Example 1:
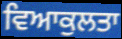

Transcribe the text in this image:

ਵਿਆਕੁਲਤਾ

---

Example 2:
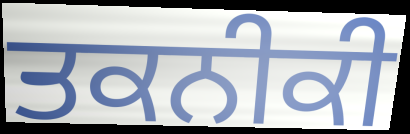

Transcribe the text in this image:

ਤਕਨੀਕੀ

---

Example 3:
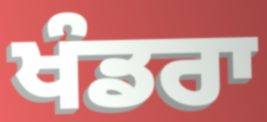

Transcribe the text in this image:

ਖੰਡਰਾ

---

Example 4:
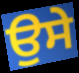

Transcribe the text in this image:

ਉਸੇ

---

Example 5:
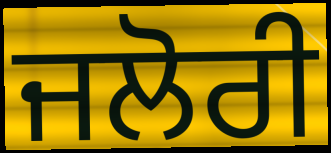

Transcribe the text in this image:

ਜਲੋਰੀ